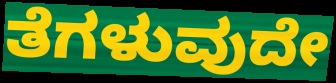
ತೆಗಳುವುದೇ